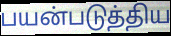
பயன்படுத்திய